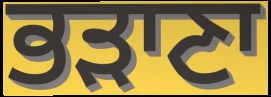
ਭੜਾਣਾ